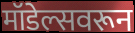
मॉडेल्सवरून